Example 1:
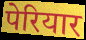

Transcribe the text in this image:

पेरियार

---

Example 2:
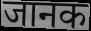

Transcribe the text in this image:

जानक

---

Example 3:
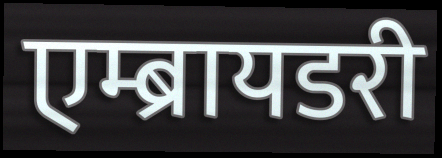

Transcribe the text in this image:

एम्ब्रायडरी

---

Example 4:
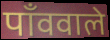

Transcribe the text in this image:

पाँववाले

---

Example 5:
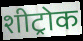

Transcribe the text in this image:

शीट्रोक